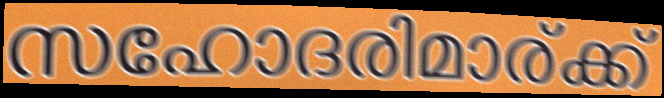
സഹോദരിമാര്ക്ക്